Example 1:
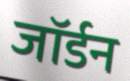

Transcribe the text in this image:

जॉर्डन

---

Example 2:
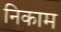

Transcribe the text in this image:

निकाम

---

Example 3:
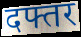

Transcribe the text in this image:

दफ्तर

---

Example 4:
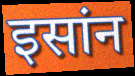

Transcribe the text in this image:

इसांन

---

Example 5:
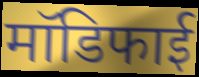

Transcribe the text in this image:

मॉडिफाई